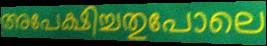
അപേക്ഷിച്ചതുപോലെ